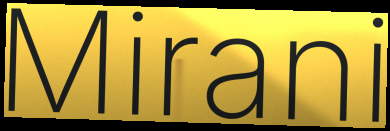
Mirani